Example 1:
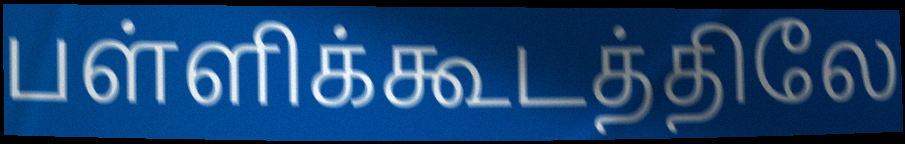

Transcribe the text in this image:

பள்ளிக்கூடத்திலே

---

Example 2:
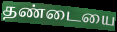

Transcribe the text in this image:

தண்டையை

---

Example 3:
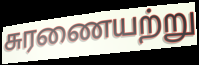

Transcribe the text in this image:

சுரணையற்று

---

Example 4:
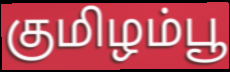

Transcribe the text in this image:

குமிழம்பூ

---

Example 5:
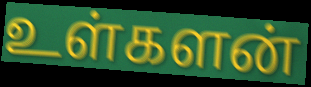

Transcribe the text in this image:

உள்களன்